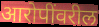
आरोपींवरील